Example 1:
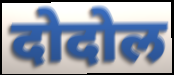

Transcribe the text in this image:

दोदोल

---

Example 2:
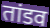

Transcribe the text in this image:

तांडव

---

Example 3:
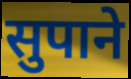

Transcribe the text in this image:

सुपाने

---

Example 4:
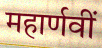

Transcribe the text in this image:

महार्णवीं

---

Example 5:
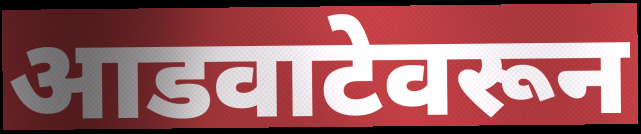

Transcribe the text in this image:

आडवाटेवरून